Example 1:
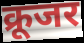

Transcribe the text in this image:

क्रूजर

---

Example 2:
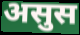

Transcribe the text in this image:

असुस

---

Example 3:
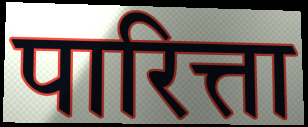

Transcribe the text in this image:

पारित्ता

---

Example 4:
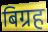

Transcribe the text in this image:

बिग्रह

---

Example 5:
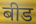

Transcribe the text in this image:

बीड